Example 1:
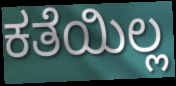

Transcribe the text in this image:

ಕತೆಯಿಲ್ಲ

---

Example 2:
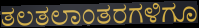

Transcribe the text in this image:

ತಲತಲಾಂತರಗಳಿಗೂ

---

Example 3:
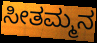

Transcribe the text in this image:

ಸೀತಮ್ಮನ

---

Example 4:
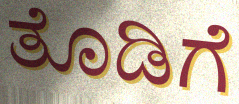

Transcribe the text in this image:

ತೊಡಿಗೆ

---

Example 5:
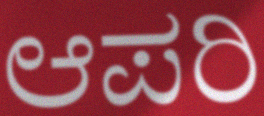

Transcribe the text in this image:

ಆಪರಿ